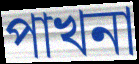
পাখনা